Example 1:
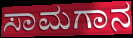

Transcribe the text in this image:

ಸಾಮಗಾನ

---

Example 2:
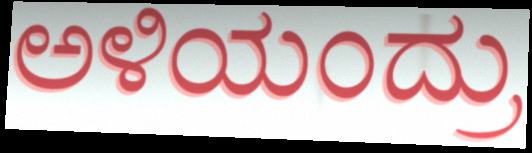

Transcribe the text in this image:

ಅಳಿಯಂದ್ರು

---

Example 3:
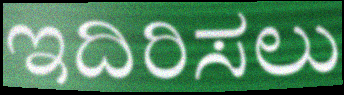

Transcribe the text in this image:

ಇದಿರಿಸಲು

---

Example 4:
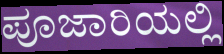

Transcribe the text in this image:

ಪೂಜಾರಿಯಲ್ಲಿ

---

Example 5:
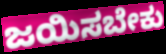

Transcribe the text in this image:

ಜಯಿಸಬೇಕು